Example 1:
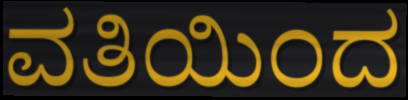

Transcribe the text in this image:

ವತಿಯಿಂದ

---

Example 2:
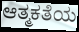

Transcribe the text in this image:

ಆತ್ಮಕತೆಯ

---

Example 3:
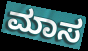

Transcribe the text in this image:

ಮಾಸ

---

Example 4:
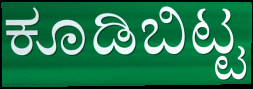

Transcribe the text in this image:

ಕೂಡಿಬಿಟ್ಟ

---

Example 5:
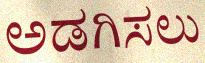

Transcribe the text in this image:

ಅಡಗಿಸಲು